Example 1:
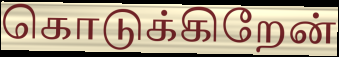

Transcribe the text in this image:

கொடுக்கிறேன்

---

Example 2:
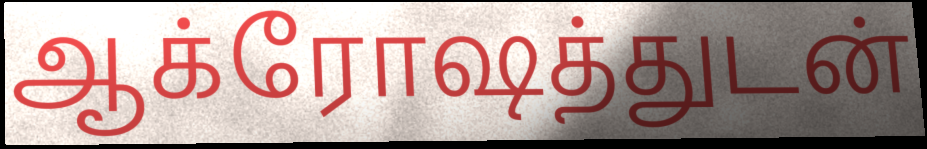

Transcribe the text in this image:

ஆக்ரோஷத்துடன்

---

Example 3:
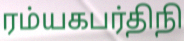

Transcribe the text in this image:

ரம்யகபர்திநி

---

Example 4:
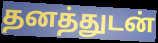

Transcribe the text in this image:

தனத்துடன்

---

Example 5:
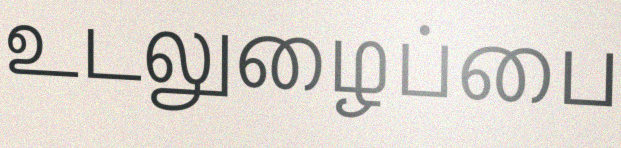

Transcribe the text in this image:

உடலுழைப்பை